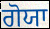
ਗੋਯਾ